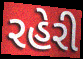
રહેરી